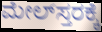
ಮೇಲ್‌ಸ್ತರಕ್ಕೆ